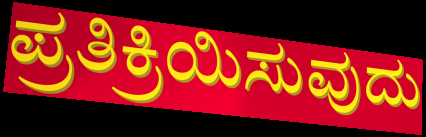
ಪ್ರತಿಕ್ರಿಯಿಸುವುದು